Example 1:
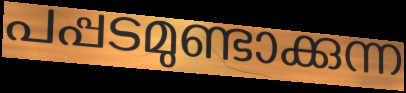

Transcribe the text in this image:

പപ്പടമുണ്ടാക്കുന്ന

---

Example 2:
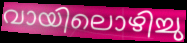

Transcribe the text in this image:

വായിലൊഴിച്ചു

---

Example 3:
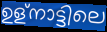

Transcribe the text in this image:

ഉള്നാട്ടിലെ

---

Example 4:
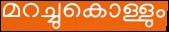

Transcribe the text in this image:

മറച്ചുകൊള്ളും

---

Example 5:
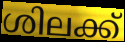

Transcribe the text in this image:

ശിലക്ക്